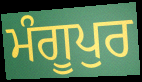
ਮੰਗੂਪੁਰ